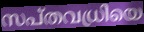
സപ്തവധ്രിയെ